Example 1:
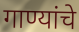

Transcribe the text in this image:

गाण्यांचे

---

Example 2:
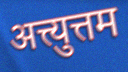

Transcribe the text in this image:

अत्त्युत्तम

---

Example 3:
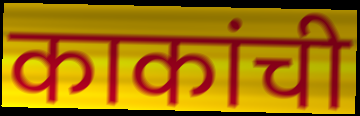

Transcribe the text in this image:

काकांची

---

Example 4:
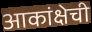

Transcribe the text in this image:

आकांक्षेची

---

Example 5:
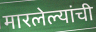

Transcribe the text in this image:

मारलेल्यांची